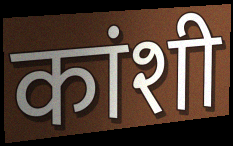
कांशी